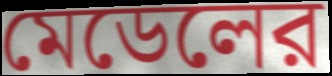
মেডেলের